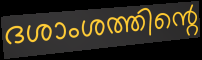
ദശാംശത്തിന്റെ